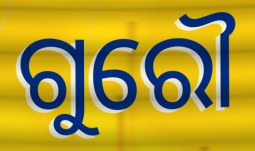
ଗୁରୌ